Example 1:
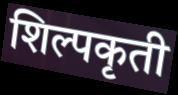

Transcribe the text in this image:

शिल्पकृती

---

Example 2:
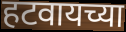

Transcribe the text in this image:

हटवायच्या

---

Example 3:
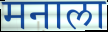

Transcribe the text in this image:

मनाला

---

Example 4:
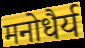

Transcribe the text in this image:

मनोधैर्य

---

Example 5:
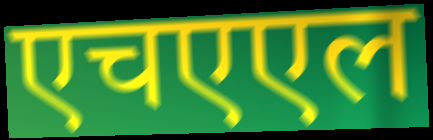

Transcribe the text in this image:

एचएएल